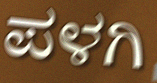
ಪಳಗಿ